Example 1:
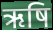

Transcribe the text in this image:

ॠषि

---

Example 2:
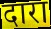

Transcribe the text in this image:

दारा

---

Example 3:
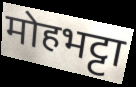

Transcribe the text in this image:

मोहभट्टा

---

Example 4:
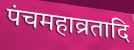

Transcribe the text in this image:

पंचमहाव्रतादि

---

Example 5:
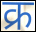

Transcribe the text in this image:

क्र